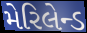
મેરિલેન્ડ